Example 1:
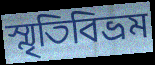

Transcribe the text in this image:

স্মৃতিবিভ্রম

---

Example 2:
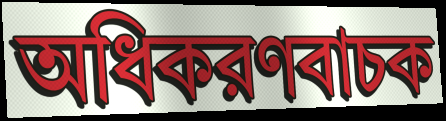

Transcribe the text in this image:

অধিকরণবাচক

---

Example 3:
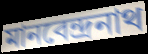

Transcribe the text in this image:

মানবেন্দ্রনাথ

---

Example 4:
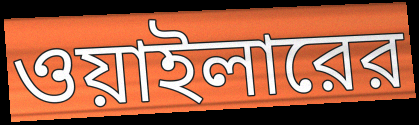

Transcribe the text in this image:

ওয়াইলারের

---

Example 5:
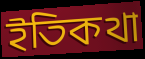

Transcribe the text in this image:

ইতিকথা